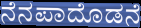
ನೆನಪಾದೊಡನೆ